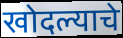
खोदल्याचे